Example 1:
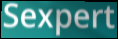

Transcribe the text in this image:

Sexpert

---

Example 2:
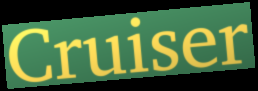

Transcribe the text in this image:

Cruiser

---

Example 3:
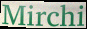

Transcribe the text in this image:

Mirchi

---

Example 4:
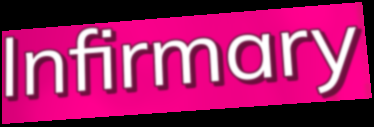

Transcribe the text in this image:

Infirmary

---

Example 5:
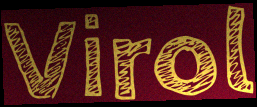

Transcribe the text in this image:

Virol